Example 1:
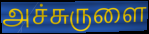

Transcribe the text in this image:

அச்சுருளை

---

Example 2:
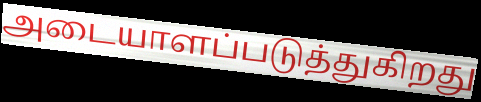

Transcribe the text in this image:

அடையாளப்படுத்துகிறது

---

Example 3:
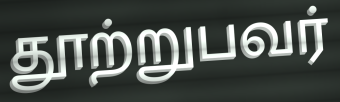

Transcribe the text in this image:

தூற்றுபவர்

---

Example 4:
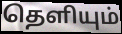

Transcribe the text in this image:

தெளியும்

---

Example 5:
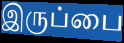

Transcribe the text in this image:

இருப்பை